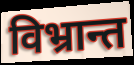
विभ्रान्त